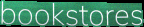
bookstores